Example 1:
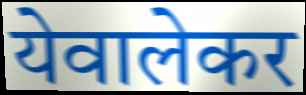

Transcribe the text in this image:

येवालेकर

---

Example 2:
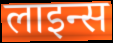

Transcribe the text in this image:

लाइन्स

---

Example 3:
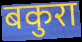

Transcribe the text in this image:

बकुरा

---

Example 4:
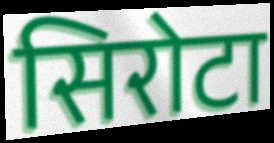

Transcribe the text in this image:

सिरोटा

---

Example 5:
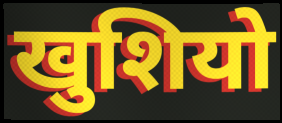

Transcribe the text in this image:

खुशियो